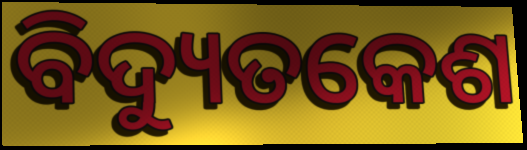
ବିଦ୍ୟୁତକେଶ